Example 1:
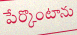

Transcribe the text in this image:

పేర్కొంటాను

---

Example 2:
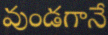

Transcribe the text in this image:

వుండగానే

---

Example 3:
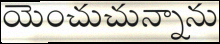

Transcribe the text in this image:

యెంచుచున్నాను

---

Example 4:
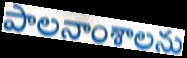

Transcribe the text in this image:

పాలనాంశాలను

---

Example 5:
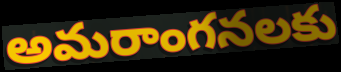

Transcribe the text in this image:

అమరాంగనలకు